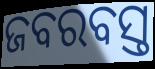
ଜବରବସ୍ତ